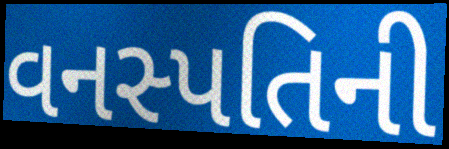
વનસ્પતિની